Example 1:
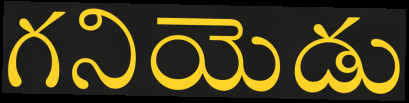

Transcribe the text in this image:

గనియెడు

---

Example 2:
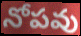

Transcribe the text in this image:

నోపవు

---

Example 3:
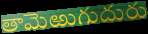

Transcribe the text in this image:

తామెఱుగుదురు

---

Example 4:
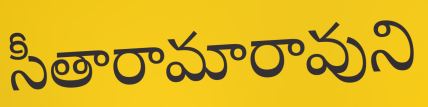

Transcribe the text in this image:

సీతారామారావుని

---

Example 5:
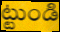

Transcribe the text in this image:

ట్టుండి